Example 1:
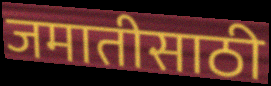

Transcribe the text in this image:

जमातीसाठी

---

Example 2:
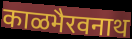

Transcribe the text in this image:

काळभैरवनाथ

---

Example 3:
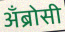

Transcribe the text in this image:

अँब्रोसी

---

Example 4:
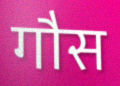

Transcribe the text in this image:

गौस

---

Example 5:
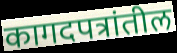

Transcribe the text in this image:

कागदपत्रांतील